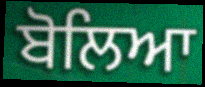
ਬੋਲਿਆ